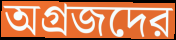
অগ্রজদের